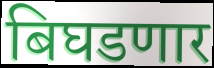
बिघडणार